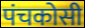
पंचकोसी